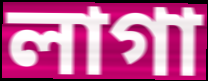
লাগা